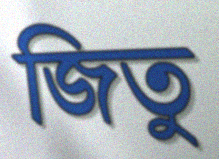
জিতু